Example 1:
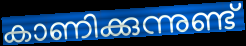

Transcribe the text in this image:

കാണിക്കുന്നുണ്ട്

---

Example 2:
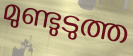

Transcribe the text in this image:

മുണ്ടുടുത്ത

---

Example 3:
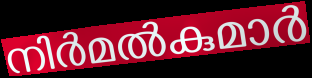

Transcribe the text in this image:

നിർമൽകുമാർ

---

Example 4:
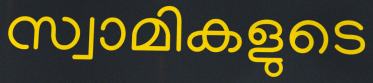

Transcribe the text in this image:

സ്വാമികളുടെ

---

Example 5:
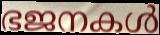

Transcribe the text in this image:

ഭജനകൾ